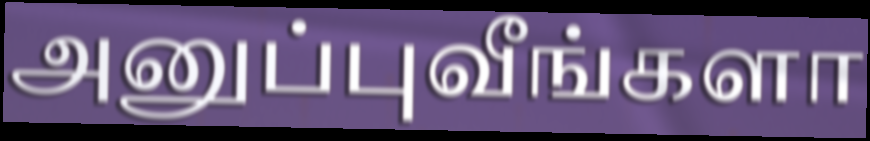
அனுப்புவீங்களா